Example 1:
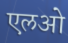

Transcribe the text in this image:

एलओ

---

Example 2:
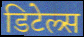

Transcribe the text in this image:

डिटेल्स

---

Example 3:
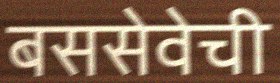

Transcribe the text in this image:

बससेवेची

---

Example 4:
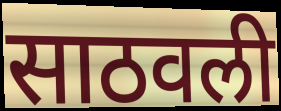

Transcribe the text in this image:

साठवली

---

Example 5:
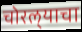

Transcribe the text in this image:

चोरल्याचा